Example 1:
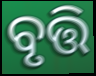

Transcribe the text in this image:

ବୃତ୍ତି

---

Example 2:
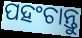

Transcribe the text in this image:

ପହଂଚାନ୍ତୁ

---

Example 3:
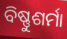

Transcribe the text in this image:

ବିଷ୍ଣୁଶର୍ମା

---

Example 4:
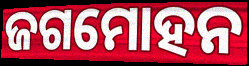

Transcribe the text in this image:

ଜଗମୋହନ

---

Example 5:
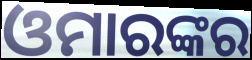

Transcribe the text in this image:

ଓମାରଙ୍କର